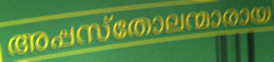
അപ്പസ്‌തോലന്മാരായ